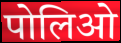
पोलिओ